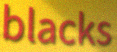
blacks